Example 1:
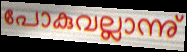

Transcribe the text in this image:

പോകുവല്ലാന്നു്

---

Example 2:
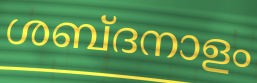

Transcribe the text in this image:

ശബ്ദനാളം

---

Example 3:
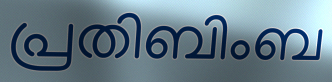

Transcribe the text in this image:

പ്രതിബിംബ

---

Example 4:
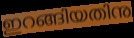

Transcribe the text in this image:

ഇറങ്ങിയതിനു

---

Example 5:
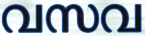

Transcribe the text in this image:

വസവ